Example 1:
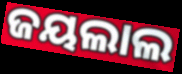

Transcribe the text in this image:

ଜୟଲାଲ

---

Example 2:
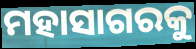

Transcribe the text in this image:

ମହାସାଗରକୁ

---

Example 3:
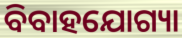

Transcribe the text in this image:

ବିବାହଯୋଗ୍ୟା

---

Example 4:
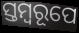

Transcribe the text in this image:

ସ୍ତମ୍ବରୂପେ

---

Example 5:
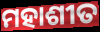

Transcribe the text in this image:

ମହାଶୀତ